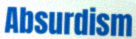
Absurdism